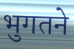
भुगतने